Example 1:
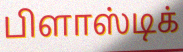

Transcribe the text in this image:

பிளாஸ்டிக்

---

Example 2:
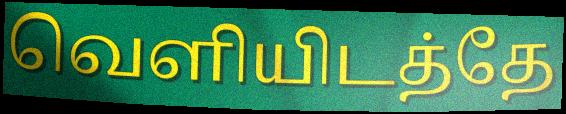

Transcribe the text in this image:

வெளியிடத்தே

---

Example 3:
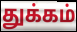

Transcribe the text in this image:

துக்கம்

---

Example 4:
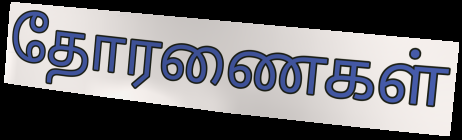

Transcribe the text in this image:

தோரணைகள்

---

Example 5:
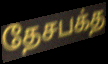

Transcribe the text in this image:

தேசபக்த